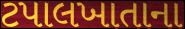
ટપાલખાતાના